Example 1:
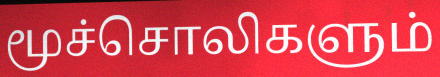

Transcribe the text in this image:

மூச்சொலிகளும்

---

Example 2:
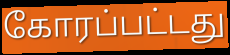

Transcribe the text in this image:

கோரப்பட்டது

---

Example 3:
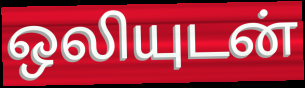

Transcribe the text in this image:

ஒலியுடன்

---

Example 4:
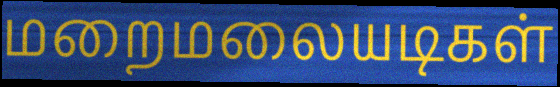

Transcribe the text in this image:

மறைமலையடிகள்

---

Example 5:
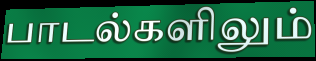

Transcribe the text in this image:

பாடல்களிலும்